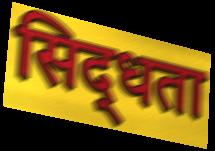
सिद्‌धता